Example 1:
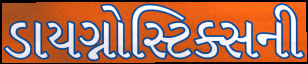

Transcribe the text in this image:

ડાયગ્નોસ્ટિક્સની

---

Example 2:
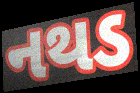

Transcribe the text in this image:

નથડ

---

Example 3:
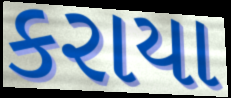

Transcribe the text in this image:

કરાયા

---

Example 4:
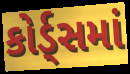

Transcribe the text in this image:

કોર્ડ્સમાં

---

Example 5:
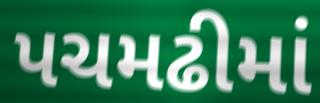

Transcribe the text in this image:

પચમઢીમાં